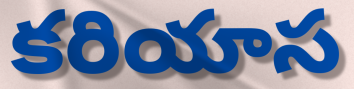
కరియాస